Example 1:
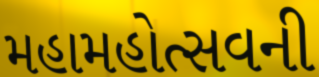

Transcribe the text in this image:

મહામહોત્સવની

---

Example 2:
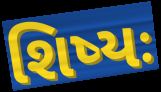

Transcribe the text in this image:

શિષ્યઃ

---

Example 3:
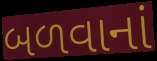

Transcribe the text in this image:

બળવાનાં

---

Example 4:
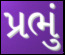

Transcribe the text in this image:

પ્રભું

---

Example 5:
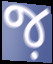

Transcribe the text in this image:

જ઼